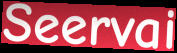
Seervai